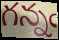
గన్నఁ